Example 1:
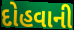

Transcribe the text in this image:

દોહવાની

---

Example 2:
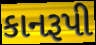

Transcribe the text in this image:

કાનરૂપી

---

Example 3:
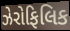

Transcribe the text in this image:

ઝેરોફિલિક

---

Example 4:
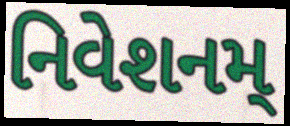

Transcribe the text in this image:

નિવેશનમ્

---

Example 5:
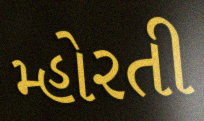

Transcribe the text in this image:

મ્હોરતી